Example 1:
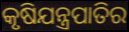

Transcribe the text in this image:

କୃଷିଯନ୍ତ୍ରପାତିର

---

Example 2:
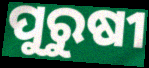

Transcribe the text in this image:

ପୁରୁଷୀ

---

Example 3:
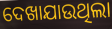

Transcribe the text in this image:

ଦେଖାଯାଉଥିଲା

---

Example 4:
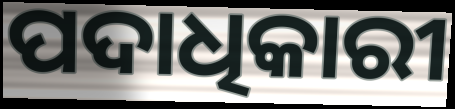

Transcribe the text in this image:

ପଦାଧିକାରୀ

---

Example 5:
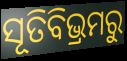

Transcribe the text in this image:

ସୂତିବିଭ୍ରମରୁ